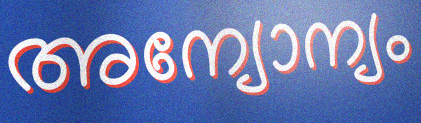
അന്യോന്യം